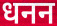
धनन